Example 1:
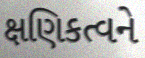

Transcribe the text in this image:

ક્ષણિકત્વને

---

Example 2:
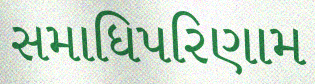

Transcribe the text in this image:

સમાધિપરિણામ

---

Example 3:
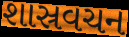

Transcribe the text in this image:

શાસ્રવચન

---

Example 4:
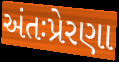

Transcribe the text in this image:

અંતઃપ્રેરણા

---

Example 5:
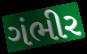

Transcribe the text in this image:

ગંભીર